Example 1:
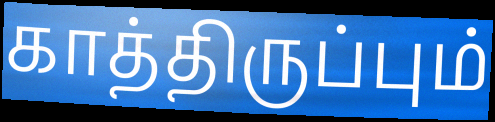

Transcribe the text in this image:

காத்திருப்பும்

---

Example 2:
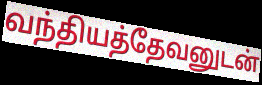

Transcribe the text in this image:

வந்தியத்தேவனுடன்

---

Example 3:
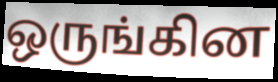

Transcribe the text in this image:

ஒருங்கின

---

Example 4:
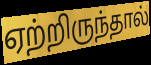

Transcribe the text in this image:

ஏற்றிருந்தால்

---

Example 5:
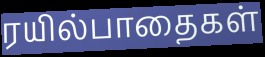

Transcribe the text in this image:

ரயில்பாதைகள்